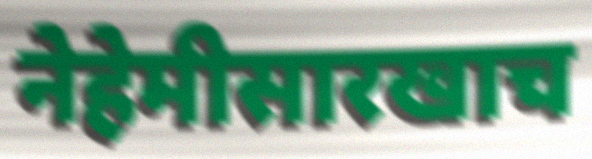
नेहेमीसारखाच